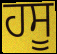
ਹਸੂ